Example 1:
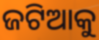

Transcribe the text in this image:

ଜଟିଆକୁ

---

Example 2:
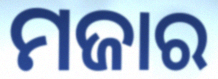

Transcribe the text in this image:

ମଜାର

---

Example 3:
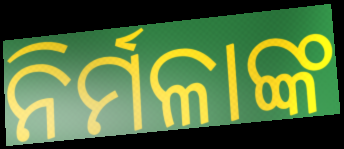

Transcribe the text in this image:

ନିର୍ମଳାଙ୍କ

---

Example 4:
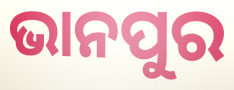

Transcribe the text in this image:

ଭାନପୁର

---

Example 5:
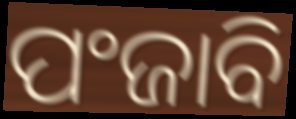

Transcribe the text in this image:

ପଂଜାବି